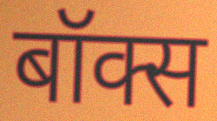
बॉक्स